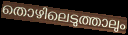
തൊഴിലെടുത്താലും